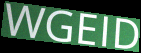
WGEID